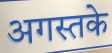
अगस्तके